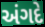
અંગદે